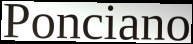
Ponciano